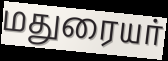
மதுரையர்